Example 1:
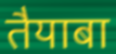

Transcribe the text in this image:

तैयाबा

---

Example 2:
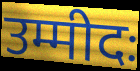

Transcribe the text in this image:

उम्मीदः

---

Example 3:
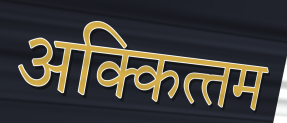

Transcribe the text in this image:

अक्‍कित्‍तम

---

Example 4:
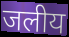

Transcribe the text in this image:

जलीय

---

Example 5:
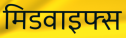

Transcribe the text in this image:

मिडवाइफ्स